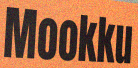
Mookku